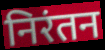
निरंतन